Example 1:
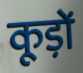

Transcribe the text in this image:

कूड़ों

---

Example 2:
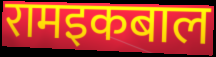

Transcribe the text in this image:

रामइकबाल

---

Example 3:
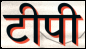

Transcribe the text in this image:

टीपी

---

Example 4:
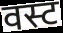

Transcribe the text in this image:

वस्ट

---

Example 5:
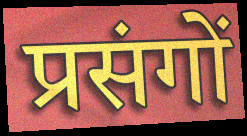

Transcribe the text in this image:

प्रसंगों